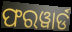
ଫରୱାର୍ଡ